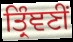
ਤ੍ਰਿੰਞਣੀਂ